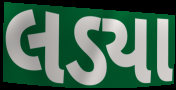
લડ્યા